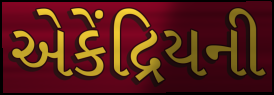
એકેંદ્રિયની